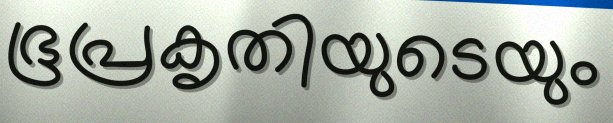
ഭൂപ്രകൃതിയുടെയും